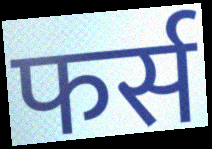
फर्स